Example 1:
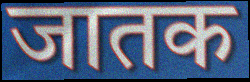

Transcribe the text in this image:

जातक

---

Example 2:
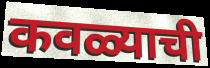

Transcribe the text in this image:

कवळ्याची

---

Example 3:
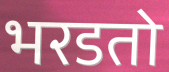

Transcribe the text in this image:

भरडतो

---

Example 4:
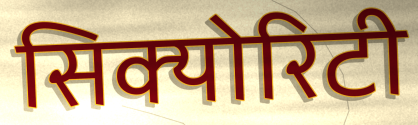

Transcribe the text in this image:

सिक्योरिटी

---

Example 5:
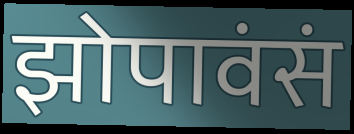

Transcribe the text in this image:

झोपावंसं